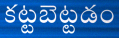
కట్టబెట్టడం